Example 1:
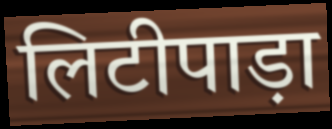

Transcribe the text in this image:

लिटीपाड़ा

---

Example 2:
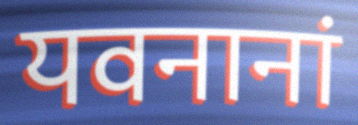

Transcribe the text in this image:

यवनानां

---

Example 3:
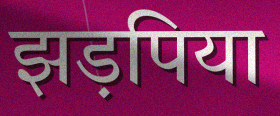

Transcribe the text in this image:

झड़पिया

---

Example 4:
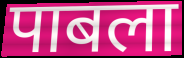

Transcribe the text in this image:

पाबला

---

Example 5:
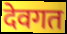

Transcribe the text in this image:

देवगत